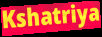
Kshatriya